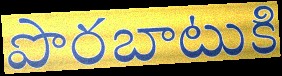
పొరబాటుకి